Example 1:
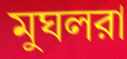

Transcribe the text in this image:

মুঘলরা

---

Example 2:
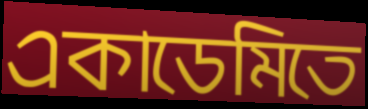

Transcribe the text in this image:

একাডেমিতে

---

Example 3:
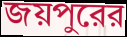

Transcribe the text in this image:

জয়পুরের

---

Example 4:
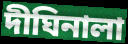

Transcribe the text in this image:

দীঘিনালা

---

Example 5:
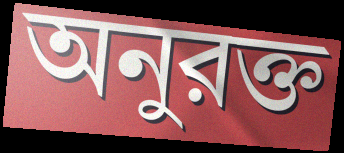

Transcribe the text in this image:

অনুরক্ত